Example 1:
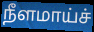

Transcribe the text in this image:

நீளமாய்ச்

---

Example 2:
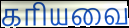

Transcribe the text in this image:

கரியவை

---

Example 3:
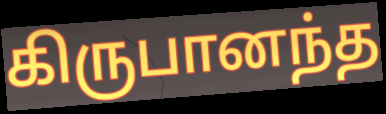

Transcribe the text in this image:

கிருபானந்த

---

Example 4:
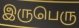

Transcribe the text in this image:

இருபெரு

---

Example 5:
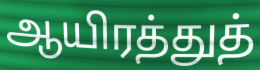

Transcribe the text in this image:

ஆயிரத்துத்